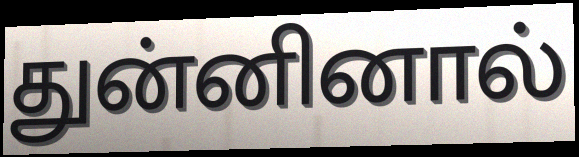
துன்னினால்